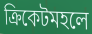
ক্রিকেটমহলে